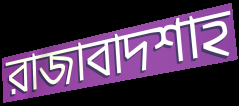
রাজাবাদশাহ